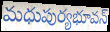
మధుపుర్యభూవన్